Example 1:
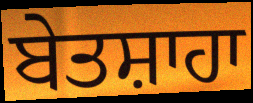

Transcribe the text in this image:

ਬੇਤਸ਼ਾਹਾ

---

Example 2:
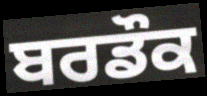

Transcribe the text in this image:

ਬਰਡੌਕ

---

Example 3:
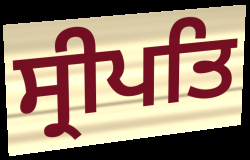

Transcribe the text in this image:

ਸ੍ਰੀਪਤਿ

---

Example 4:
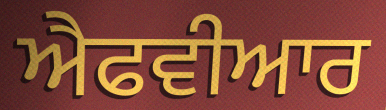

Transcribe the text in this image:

ਐਫਵੀਆਰ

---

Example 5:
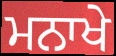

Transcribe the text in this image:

ਮਨਾਖੇ